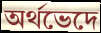
অর্থভেদে